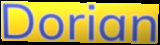
Dorian